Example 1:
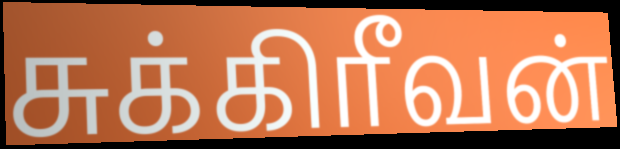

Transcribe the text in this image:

சுக்கிரீவன்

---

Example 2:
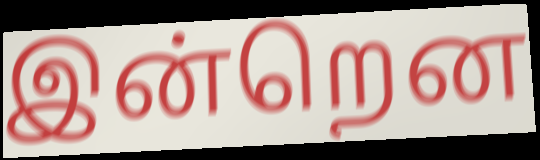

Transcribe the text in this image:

இன்றென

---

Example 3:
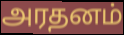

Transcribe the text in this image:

அரதனம்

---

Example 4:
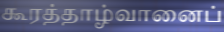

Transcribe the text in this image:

கூரத்தாழ்வானைப்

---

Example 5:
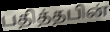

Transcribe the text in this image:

பதித்தபின்